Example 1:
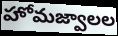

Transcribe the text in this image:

హోమజ్వాలల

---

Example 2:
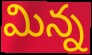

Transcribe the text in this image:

మిన్న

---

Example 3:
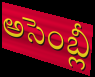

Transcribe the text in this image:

అసెంబ్లీ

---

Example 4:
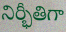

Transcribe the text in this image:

నిర్భీతిగా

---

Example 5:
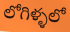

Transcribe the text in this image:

లోగిళ్ళలో